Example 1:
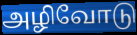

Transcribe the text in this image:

அழிவோடு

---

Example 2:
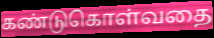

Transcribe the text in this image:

கண்டுகொள்வதை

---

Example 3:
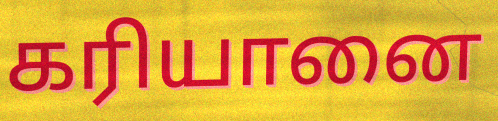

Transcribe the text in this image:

கரியானை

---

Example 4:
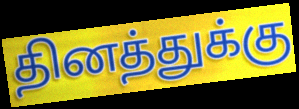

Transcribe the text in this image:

தினத்துக்கு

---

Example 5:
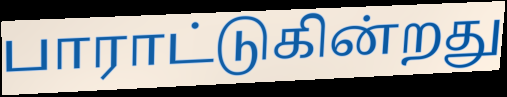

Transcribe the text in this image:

பாராட்டுகின்றது